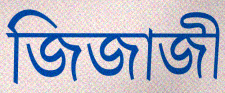
জিজাজী